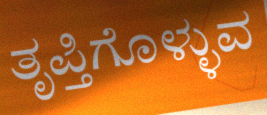
ತೃಪ್ತಿಗೊಳ್ಳುವ